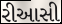
રીઆસી